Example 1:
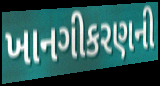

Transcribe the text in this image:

ખાનગીકરણની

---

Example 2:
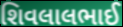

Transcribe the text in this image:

શિવલાલભાઈ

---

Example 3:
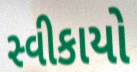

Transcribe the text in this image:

સ્વીકાયો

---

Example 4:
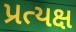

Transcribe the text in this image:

પ્રત્યક્ષ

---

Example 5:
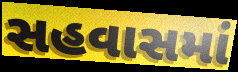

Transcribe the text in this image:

સહવાસમાં